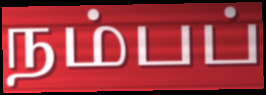
நம்பப்